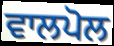
ਵਾਲਪੋਲ